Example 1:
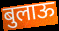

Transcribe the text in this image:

बुलाऊ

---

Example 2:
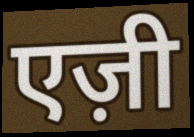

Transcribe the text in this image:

एज़ी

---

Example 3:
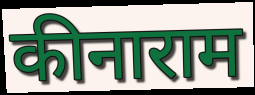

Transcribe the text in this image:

कीनाराम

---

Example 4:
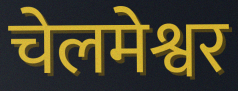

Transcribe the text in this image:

चेलमेश्वर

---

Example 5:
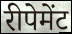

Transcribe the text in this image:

रीपेमेंट